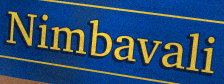
Nimbavali